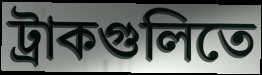
ট্রাকগুলিতে